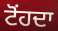
ਟੋਂਹਦਾ